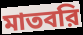
মাতবরি